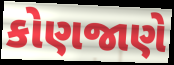
કોણજાણે